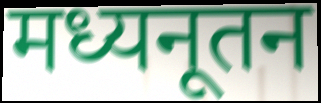
मध्यनूतन